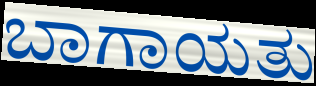
ಬಾಗಾಯತು